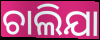
ଚାଲିଯା